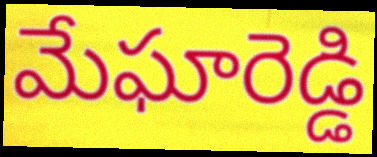
మేఘారెడ్డి